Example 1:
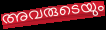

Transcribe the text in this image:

അവരുടെയും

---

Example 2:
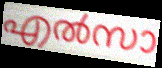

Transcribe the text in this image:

എൽസാ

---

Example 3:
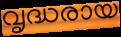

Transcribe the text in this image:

വൃദ്ധരായ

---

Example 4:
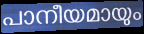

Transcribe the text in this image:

പാനീയമായും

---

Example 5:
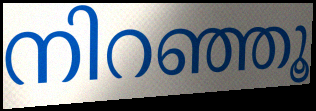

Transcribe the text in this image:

നിറഞ്ഞൂ